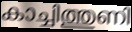
കാച്ചിത്തുണി